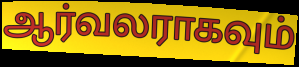
ஆர்வலராகவும்